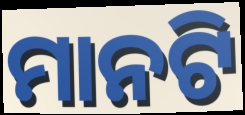
ମାନଟି